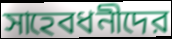
সাহেবধনীদের